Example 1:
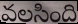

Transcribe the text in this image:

వలసింది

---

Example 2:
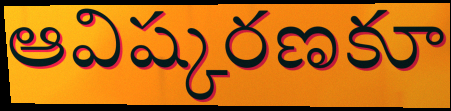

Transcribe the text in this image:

ఆవిష్కరణకూ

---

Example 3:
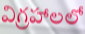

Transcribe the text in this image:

విగ్రహాలలో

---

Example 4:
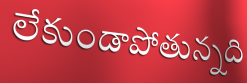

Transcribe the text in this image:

లేకుండాపోతున్నది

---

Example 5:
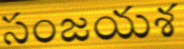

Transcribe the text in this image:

సంజయశ